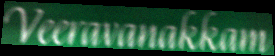
Veeravanakkam